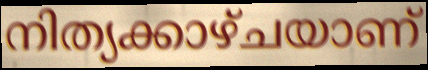
നിത്യക്കാഴ്ചയാണ്